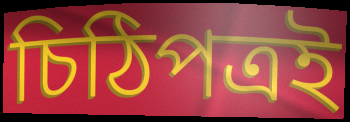
চিঠিপত্রই